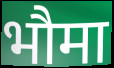
भौमा